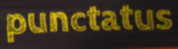
punctatus